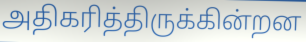
அதிகரித்திருக்கின்றன